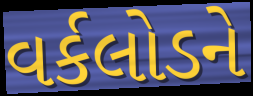
વર્કલોડને